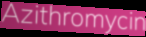
Azithromycin